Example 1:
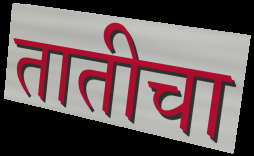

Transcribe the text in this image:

तातीचा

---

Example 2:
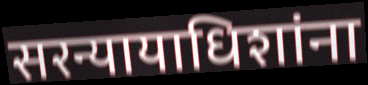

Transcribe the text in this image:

सरन्यायाधिशांना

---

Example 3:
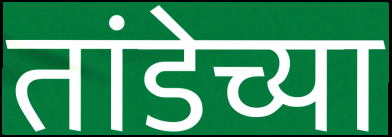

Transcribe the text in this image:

तांडेच्या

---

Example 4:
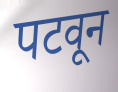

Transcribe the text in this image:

पटवून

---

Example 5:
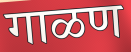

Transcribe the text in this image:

गाळण